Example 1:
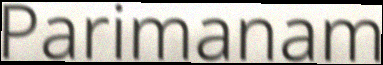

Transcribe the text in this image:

Parimanam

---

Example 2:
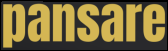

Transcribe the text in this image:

pansare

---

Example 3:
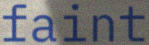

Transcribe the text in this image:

faint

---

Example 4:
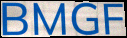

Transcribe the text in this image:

BMGF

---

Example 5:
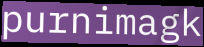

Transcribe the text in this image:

purnimagk